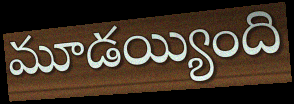
మూడయ్యింది